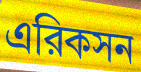
এরিকসন